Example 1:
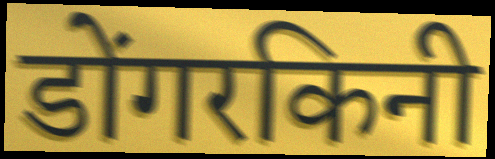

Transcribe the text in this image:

डोंगरकिनी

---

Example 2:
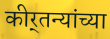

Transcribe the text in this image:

कीर्तन्यांच्या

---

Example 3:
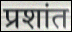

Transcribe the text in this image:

प्रशांत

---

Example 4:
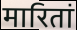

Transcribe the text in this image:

मारितां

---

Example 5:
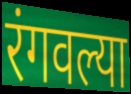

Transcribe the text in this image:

रंगवल्या